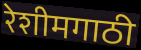
रेशीमगाठी